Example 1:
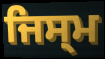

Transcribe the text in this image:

ਜਿਸ੍ਮ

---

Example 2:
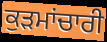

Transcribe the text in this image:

ਕੁੜਮਾਂਚਾਰੀ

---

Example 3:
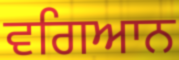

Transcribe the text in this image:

ਵਗਿਆਨ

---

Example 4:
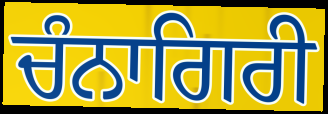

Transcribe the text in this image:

ਚੰਨਾਗਿਰੀ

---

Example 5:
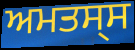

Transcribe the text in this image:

ਅਮਤਸ੍ਸ